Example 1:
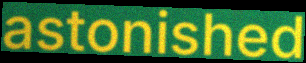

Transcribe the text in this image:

astonished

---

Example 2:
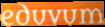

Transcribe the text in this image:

eduvum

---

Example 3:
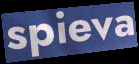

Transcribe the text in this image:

spieva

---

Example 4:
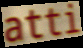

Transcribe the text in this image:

atti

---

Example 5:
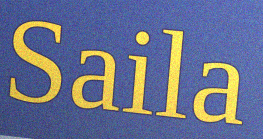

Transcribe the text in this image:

Saila